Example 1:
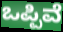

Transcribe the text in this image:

ಒಪ್ಪಿವೆ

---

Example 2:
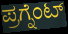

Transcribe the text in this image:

ಪ್ರಗ್ನೆಂಟ್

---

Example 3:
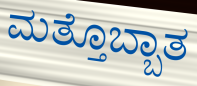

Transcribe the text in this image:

ಮತ್ತೊಬ್ಬಾತ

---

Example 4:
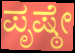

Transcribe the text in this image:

ಪೃಷ್ಠೇ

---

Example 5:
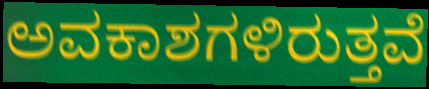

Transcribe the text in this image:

ಅವಕಾಶಗಳಿರುತ್ತವೆ